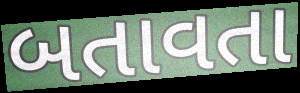
બતાવતા